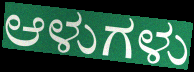
ಆಳುಗಳು